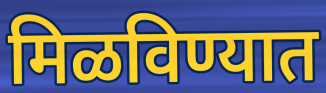
मिळविण्यात